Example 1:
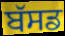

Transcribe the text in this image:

ਬੱਸਡ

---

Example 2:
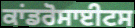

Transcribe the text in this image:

ਕਾਂਡਰੋਸਾਈਟਸ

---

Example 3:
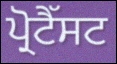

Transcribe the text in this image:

ਪ੍ਰੋਟੈੱਸਟ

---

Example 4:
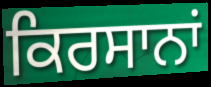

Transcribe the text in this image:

ਕਿਰਸਾਨਾਂ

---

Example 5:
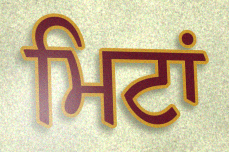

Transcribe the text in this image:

ਮਿਟਾਂ